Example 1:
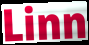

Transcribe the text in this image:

Linn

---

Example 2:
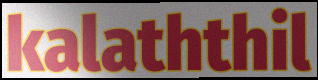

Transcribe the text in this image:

kalaththil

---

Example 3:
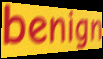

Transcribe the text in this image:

benign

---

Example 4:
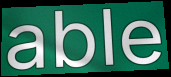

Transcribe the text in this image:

able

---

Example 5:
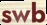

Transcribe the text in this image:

swb